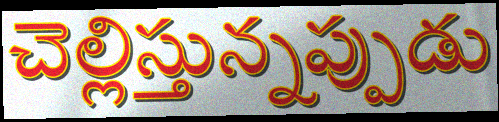
చెల్లిస్తున్నప్పుడు